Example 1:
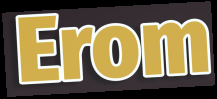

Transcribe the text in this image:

Erom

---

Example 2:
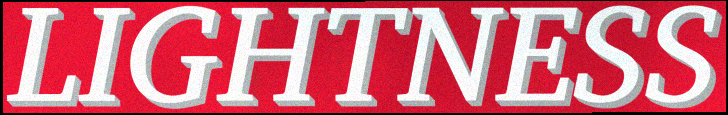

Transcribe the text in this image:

LIGHTNESS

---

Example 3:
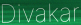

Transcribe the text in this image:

Divakar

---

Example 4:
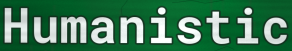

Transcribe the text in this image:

Humanistic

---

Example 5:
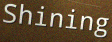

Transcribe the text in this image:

Shining